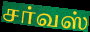
சர்வஸ்